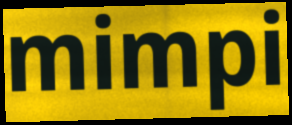
mimpi